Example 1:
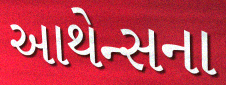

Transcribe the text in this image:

આથેન્સના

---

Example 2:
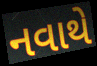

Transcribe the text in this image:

નવાથે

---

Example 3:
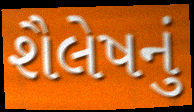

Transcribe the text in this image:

શૈલેષનું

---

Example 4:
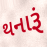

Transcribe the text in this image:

થનારૂં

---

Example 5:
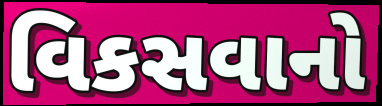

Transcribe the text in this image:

વિકસવાનો